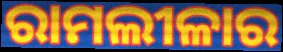
ରାମଲୀଳାର